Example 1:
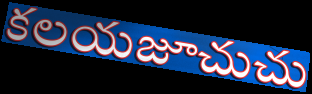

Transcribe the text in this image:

కలయజూచుచు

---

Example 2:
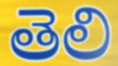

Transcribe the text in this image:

తెలి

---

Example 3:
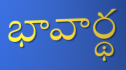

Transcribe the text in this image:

భావార్థ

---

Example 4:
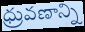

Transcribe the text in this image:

ధ్రువణాన్ని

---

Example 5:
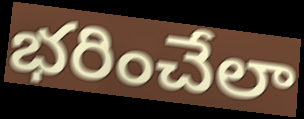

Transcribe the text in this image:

భరించేలా